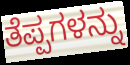
ತೆಪ್ಪಗಳನ್ನು